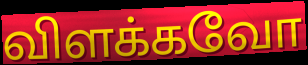
விளக்கவோ